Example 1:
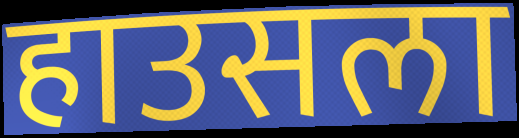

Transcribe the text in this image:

हाउसला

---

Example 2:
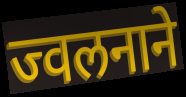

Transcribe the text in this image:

ज्वलनाने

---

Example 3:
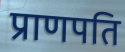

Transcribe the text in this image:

प्राणपति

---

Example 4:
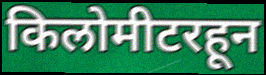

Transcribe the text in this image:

किलोमीटरहून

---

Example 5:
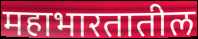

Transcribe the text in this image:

महाभारतातील